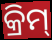
କ୍ରିମ୍